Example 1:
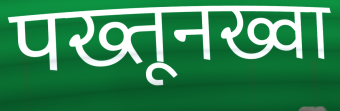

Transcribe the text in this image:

पख्तूनख्वा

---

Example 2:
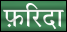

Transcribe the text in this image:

फ़रिदा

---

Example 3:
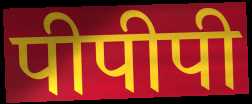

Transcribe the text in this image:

पीपीपी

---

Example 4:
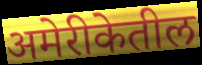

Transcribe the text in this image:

अमेरीकेतील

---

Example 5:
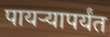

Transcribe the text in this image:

पायऱ्यापर्यंत